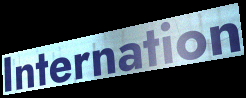
Internation